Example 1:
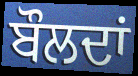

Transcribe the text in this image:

ਬੌਲਦਾਂ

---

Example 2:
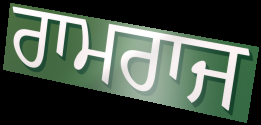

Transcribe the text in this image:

ਰਾਮਰਾਜ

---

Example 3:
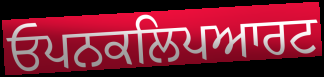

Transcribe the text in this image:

ਓਪਨਕਲਿਪਆਰਟ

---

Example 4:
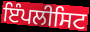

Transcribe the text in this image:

ਇੰਪਲੀਸਿਟ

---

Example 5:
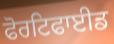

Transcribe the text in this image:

ਫੋਰਟਿਫਾਈਡ